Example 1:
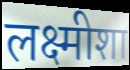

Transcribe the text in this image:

लक्ष्मीशा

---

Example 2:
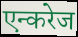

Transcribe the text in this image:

एन्करेज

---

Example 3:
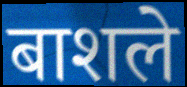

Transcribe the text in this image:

बाशले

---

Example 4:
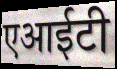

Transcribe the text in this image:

एआईटी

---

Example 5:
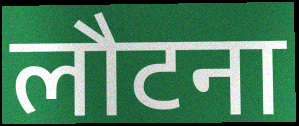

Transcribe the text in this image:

लौटना